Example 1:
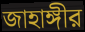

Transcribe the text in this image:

জাহাঙ্গীর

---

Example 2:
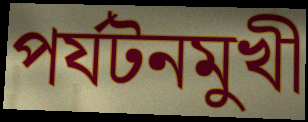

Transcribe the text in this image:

পর্যটনমুখী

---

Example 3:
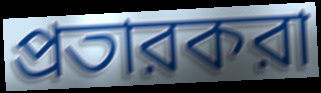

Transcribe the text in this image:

প্রতারকরা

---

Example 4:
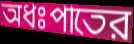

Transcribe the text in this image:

অধঃপাতের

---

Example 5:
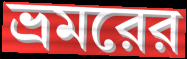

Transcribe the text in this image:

ভ্রমরের